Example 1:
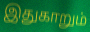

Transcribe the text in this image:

இதுகாறும்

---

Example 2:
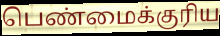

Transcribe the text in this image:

பெண்மைக்குரிய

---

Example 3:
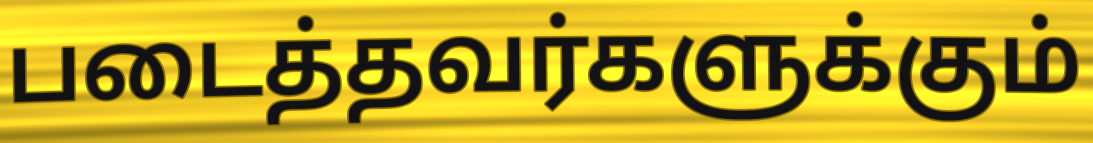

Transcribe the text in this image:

படைத்தவர்களுக்கும்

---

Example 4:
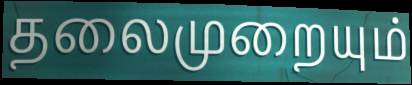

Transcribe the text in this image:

தலைமுறையும்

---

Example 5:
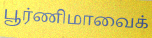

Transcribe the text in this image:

பூர்ணிமாவைக்